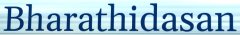
Bharathidasan